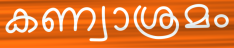
കണ്വാശ്രമം